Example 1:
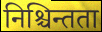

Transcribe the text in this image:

निश्चिन्तता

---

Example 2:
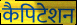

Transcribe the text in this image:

कैपिटेशन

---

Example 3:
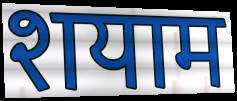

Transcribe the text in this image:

शयाम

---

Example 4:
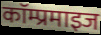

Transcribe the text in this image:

कॉम्प्रमाइज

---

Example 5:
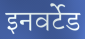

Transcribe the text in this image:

इनवर्टेड